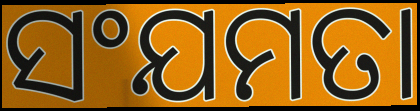
ସଂଯମତା